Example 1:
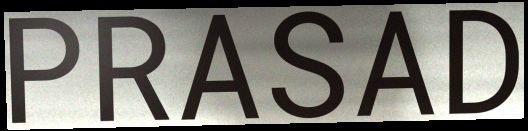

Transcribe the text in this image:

PRASAD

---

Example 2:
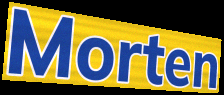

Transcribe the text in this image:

Morten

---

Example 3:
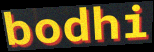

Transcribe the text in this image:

bodhi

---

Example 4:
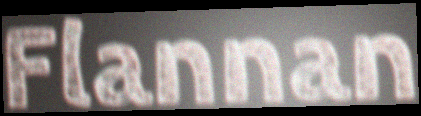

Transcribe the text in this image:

Flannan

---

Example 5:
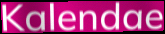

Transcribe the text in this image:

Kalendae